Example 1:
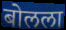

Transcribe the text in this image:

बोलला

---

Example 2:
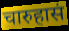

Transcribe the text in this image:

चारुहासं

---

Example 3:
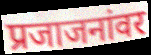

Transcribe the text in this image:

प्रजाजनांवर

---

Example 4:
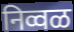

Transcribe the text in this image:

निव्‍वळ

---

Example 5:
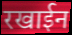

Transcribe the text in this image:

रखाईन